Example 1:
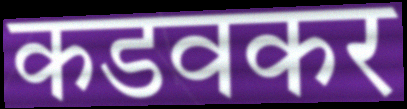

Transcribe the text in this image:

कडवकर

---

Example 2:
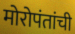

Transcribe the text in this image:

मोरोपंतांची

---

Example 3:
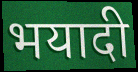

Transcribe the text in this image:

भयादी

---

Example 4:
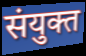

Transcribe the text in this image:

संयुक्त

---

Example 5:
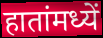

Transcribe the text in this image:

हातांमध्यें